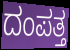
ದಂಪತ್ತ